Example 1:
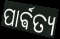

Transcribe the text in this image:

ପାର୍ଵତ୍ଯ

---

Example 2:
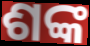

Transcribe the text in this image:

ଶଙ୍କ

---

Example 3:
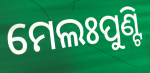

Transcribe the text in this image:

ମେଲଃପୁଣ୍ଟି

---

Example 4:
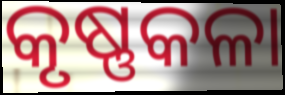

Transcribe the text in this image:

କୃଷ୍ଣକଳା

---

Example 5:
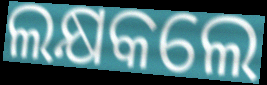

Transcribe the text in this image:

ଲକ୍ଷକଲେ